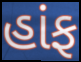
હાંફ